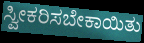
ಸ್ವೀಕರಿಸಬೇಕಾಯಿತು